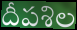
దీపశిల